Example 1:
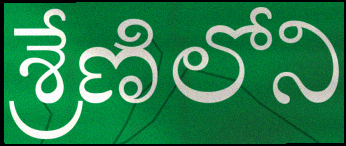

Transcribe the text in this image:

శ్రేణిలోని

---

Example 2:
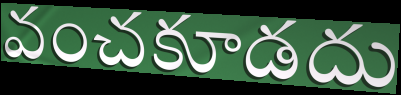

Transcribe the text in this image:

వంచకూడదు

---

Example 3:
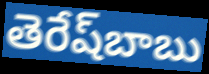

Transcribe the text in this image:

తెరేష్‌బాబు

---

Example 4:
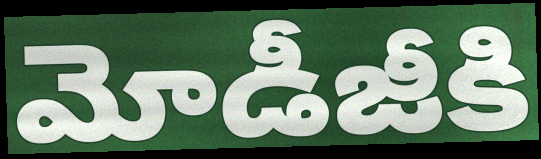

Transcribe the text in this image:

మోడీజీకి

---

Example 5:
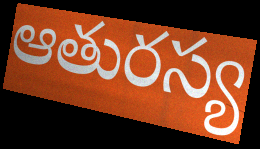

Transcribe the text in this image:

ఆతురస్య